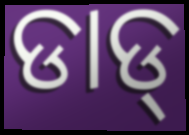
ଡାଡ୍